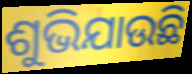
ଶୁଭିଯାଉଛି